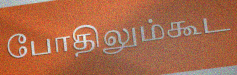
போதிலும்கூட